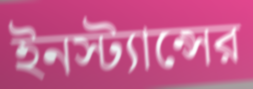
ইনস্ট্যান্সের